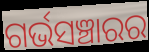
ଗର୍ଭସଞ୍ଚାରର